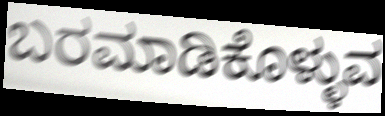
ಬರಮಾಡಿಕೊಳ್ಳುವ